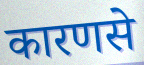
कारणसे